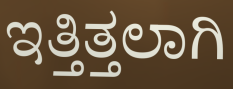
ಇತ್ತಿತ್ತಲಾಗಿ